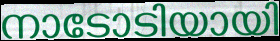
നാടോടിയായി